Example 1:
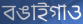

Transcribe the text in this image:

বঙাইগাও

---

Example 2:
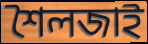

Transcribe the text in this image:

শৈলজাই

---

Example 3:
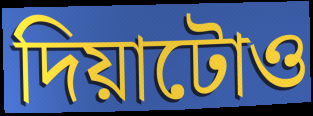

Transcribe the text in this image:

দিয়াটোও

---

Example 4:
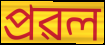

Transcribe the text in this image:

প্ৰৱল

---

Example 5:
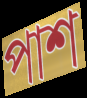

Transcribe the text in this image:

পাশ